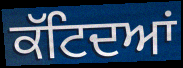
ਕੱਟਿਦਆਂ